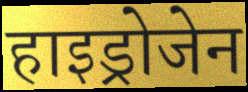
हाइड्रोजेन